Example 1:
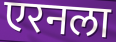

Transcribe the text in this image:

एरनला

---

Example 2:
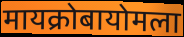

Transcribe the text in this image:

मायक्रोबायोमला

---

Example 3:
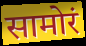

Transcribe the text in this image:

सामोरं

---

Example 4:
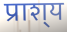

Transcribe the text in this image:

प्राश्य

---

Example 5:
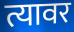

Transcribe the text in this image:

त्यावर